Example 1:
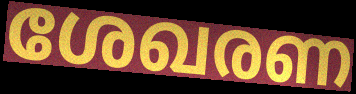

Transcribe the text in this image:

ശേഖരണ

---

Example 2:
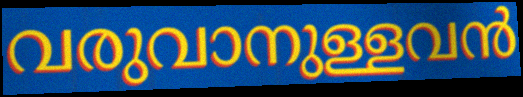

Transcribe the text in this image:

വരുവാനുള്ളവൻ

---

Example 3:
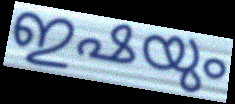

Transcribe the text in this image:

ഇഷയും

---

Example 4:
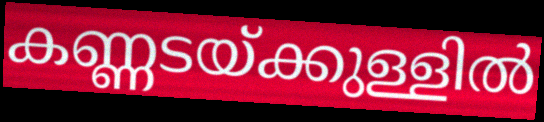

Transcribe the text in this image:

കണ്ണടയ്ക്കുള്ളിൽ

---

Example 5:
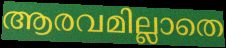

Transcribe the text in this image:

ആരവമില്ലാതെ